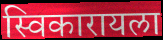
स्विकारायला